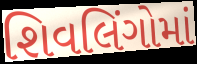
શિવલિંગોમાં